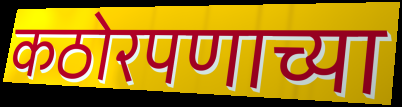
कठोरपणाच्या